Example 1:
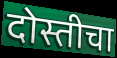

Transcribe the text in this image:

दोस्तीचा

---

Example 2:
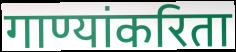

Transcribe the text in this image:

गाण्यांकरिता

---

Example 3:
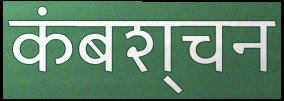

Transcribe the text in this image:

कंबश्चन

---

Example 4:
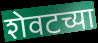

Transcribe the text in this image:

शेवटच्या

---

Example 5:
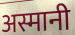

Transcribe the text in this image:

अस्मानी